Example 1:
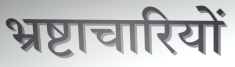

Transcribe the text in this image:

भ्रष्टाचारियों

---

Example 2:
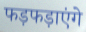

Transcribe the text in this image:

फड़फड़ाएंगे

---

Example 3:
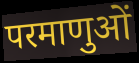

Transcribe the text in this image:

परमाणुओं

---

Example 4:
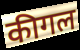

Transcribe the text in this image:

कीगल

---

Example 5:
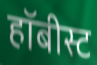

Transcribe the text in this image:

हॉबीस्ट